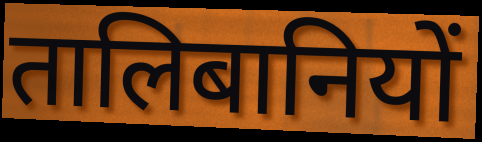
तालिबानियों